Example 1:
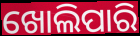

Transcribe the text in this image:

ଖୋଲିପାରି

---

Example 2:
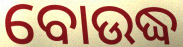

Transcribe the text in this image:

ବୋଉଦ୍ଧ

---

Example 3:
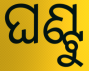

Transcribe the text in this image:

ଘଣ୍ଟୁ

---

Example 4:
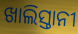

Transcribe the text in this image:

ଖାଲିସ୍ତାନୀ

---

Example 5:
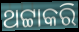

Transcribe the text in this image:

ଥଟ୍ଟାକରି